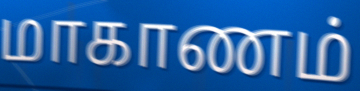
மாகாணம்